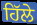
ਹਿੱਲੇ